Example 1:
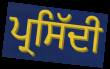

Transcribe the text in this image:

ਪ੍ਰਸਿੱਦੀ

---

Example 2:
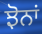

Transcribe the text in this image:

ਝੋਨਾਂ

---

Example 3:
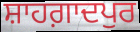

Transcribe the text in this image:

ਸ਼ਾਹਗ਼ਾਦਪੁਰ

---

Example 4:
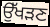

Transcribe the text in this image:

ਉੱਖੜਣ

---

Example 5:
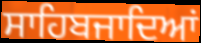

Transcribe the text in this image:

ਸਾਹਿਬਜਾਦਿਆਂ